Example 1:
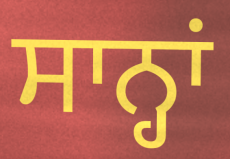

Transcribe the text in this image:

ਸਾਨ੍ਹਾਂ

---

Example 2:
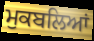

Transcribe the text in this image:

ਮੁਕਬਲਿਆਂ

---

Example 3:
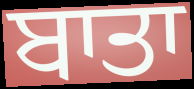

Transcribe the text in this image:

ਬਾਤਾ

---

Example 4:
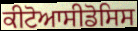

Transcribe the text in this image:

ਕੀਟੋਆਸੀਡੋਸਿਸ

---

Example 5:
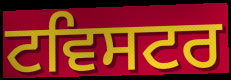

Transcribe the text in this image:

ਟਵਿਸਟਰ